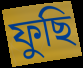
ফুছি